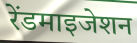
रेंडमाइजेशन